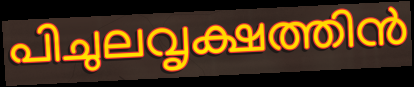
പിചുലവൃക്ഷത്തിൻ